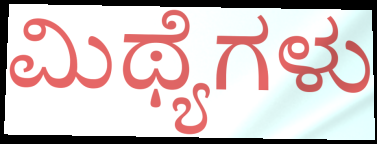
ಮಿಥ್ಯೆಗಳು